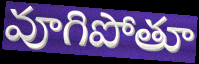
వూగిపోతూ